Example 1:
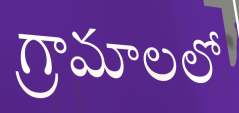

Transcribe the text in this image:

గ్రామాలలో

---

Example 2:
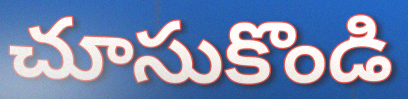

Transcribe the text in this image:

చూసుకొండి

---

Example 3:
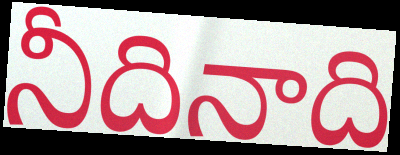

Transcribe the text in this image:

నీదినాది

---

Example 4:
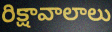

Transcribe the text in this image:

రిక్షావాలాలు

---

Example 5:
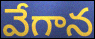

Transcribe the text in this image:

వేగాన